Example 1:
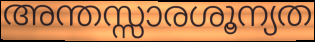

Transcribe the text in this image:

അന്തസ്സാരശൂന്യത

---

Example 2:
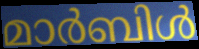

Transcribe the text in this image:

മാർബിൾ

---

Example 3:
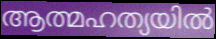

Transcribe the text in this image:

ആത്മഹത്യയിൽ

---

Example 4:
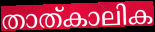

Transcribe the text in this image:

താത്കാലിക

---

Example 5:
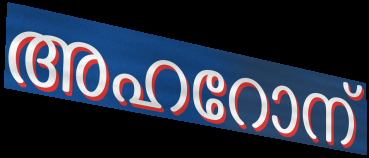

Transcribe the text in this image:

അഹറോന്